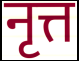
नृत्त